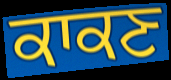
ਕਾਕਣ